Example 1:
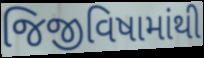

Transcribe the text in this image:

જિજીવિષામાંથી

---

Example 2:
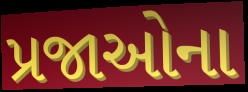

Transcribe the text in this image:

પ્રજાઓના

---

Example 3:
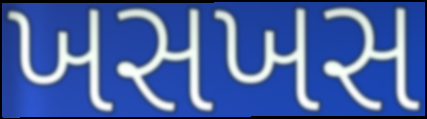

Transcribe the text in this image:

ખસખસ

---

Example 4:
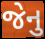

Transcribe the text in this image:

જેનુ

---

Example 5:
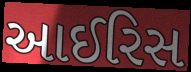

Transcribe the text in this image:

આઈરિસ